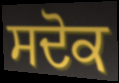
ਸਦੋਕ